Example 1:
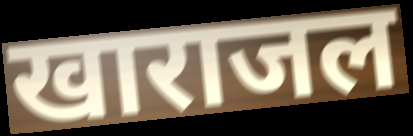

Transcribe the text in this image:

खाराजल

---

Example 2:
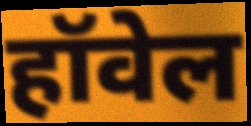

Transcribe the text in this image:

हॉवेल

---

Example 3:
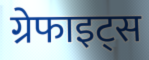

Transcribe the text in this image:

ग्रेफाइट्स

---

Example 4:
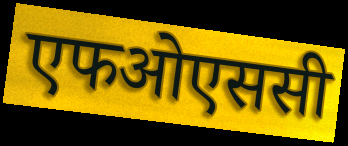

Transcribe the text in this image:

एफओएससी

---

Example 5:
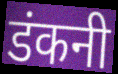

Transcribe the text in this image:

डंकनी